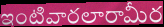
ఇంటివారలారామీర